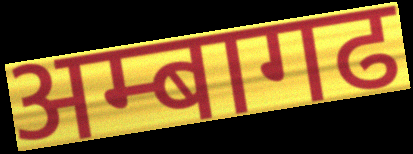
अम्बागढ